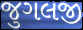
જુગલજી